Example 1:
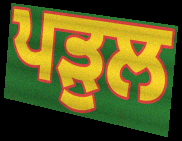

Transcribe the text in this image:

ਪੜੁਲ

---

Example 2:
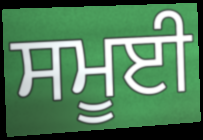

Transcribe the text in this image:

ਸਮੂਈ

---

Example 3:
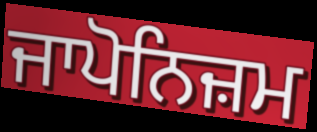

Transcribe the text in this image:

ਜਾਪੋਨਿਜ਼ਮ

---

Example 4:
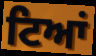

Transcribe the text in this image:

ਟਿਆਂ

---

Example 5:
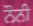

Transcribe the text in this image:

ਨੌਨੀ